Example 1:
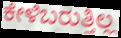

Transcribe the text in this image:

ಕೇಳಿಬರುತ್ತಿಲ್ಲ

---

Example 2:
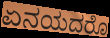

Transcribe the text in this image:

ಏನಯದರೊ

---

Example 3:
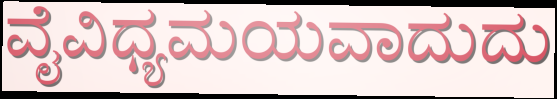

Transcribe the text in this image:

ವೈವಿಧ್ಯಮಯವಾದುದು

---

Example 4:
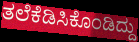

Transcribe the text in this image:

ತಲೆಕೆಡಿಸಿಕೊಂಡಿದ್ದು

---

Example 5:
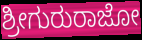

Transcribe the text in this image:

ಶ್ರೀಗುರುರಾಜೋ